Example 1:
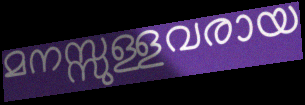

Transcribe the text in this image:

മനസ്സുള്ളവരായ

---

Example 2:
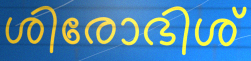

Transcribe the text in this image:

ശിരോഭിശ്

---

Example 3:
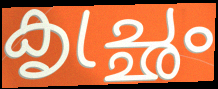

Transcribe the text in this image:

കൃച്ഛ്രം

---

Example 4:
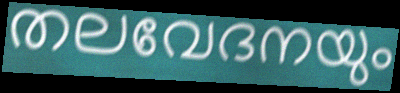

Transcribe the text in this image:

തലവേദനയും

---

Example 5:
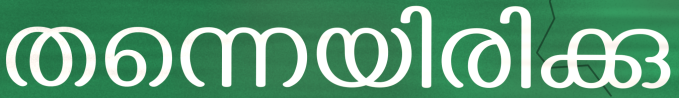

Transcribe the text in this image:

തന്നെയിരിക്കു